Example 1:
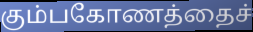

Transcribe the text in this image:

கும்பகோணத்தைச்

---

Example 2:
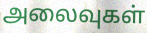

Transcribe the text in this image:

அலைவுகள்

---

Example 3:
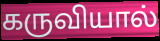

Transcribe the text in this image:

கருவியால்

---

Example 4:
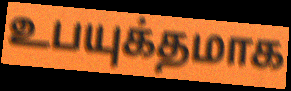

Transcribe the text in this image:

உபயுக்தமாக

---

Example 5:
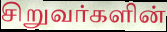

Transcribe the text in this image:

சிறுவர்களின்